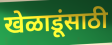
खेळाडूंसाठी